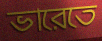
ভারেতে